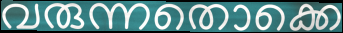
വരുന്നതൊക്കെ